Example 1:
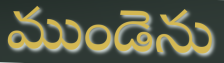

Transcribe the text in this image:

ముండెను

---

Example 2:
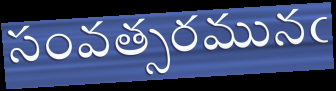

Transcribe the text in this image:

సంవత్సరమునఁ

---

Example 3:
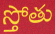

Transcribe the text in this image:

స్తోతు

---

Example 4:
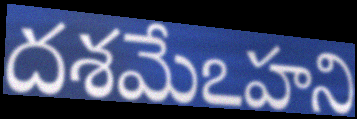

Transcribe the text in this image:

దశమేఽహని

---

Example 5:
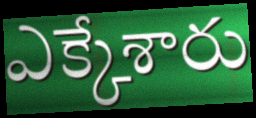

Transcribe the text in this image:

ఎక్కేశారు